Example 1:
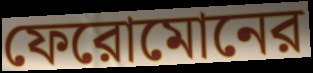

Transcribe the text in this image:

ফেরোমোনের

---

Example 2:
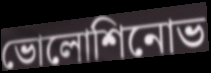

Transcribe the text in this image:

ভোলোশিনোভ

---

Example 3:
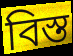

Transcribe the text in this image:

বিস্ত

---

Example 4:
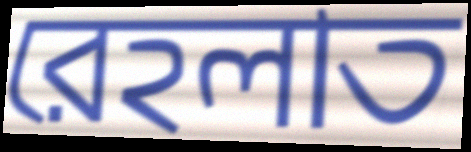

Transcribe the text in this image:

রেহলাত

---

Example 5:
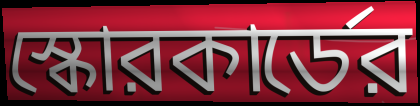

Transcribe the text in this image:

স্কোরকার্ডের